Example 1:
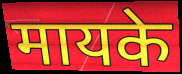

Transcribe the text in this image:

मायके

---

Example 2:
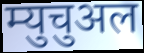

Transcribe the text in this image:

म्युचुअल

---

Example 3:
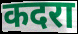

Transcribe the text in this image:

कदरा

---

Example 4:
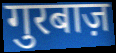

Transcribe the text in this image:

गुरबाज़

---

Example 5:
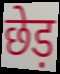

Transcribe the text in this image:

छेड़